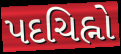
પદચિહ્નો